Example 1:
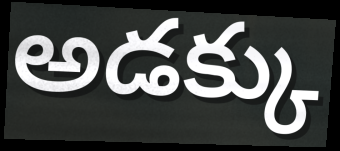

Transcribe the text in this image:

అడక్కు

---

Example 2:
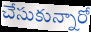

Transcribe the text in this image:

చేసుకున్నారో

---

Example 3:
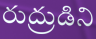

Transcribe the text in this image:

రుద్రుడిని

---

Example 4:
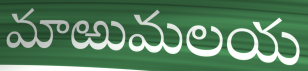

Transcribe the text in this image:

మాఱుమలయ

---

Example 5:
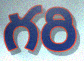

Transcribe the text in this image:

గరి